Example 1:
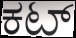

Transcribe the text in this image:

ಕಟ್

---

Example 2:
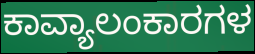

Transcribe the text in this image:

ಕಾವ್ಯಾಲಂಕಾರಗಳ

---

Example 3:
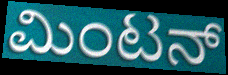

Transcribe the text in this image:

ಮಿಂಟನ್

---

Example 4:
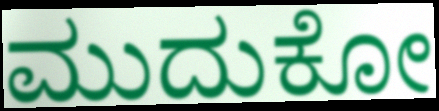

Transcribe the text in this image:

ಮುದುಕೋ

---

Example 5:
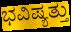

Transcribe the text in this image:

ಭವಿಷ್ಯತ್ತು